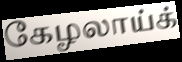
கேழலாய்க்